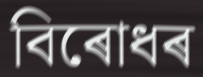
বিৰোধৰ